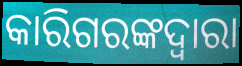
କାରିଗରଙ୍କଦ୍ୱାରା